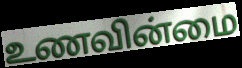
உணவின்மை